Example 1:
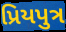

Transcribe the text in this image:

પ્રિયપુત્ર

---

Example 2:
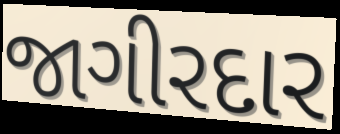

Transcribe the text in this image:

જાગીરદાર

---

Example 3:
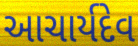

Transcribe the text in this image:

આચાર્યદેવ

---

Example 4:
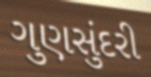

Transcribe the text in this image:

ગુણસુંદરી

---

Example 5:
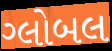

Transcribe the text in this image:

ગ્લોબલ